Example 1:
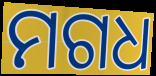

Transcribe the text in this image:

ମଗଧ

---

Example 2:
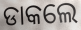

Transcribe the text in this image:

ଡାକଲେ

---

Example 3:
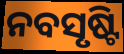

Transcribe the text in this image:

ନବସୃଷ୍ଟି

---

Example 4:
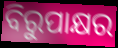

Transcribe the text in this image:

ବିରୁପାକ୍ଷର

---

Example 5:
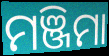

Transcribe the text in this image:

ମଞ୍ଜିମା